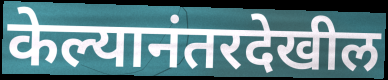
केल्यानंतरदेखील